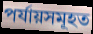
পৰ্যায়সমূহত